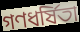
গণধর্ষিতা